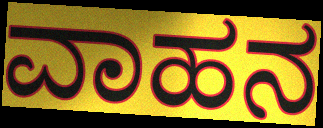
ವಾಹನ